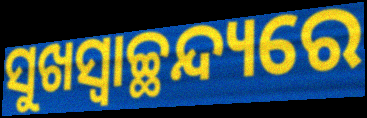
ସୁଖସ୍ଵାଚ୍ଛନ୍ଦ୍ୟରେ